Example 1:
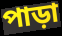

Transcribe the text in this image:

পাড়া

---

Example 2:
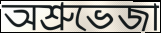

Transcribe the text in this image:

অশ্রুভেজা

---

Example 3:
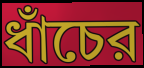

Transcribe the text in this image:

ধাঁচের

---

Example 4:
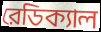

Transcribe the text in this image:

রেডিক্যাল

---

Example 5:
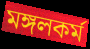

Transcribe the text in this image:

মঙ্গলকর্ম